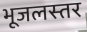
भूजलस्तर